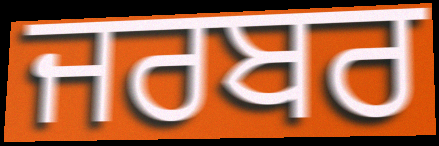
ਜਰਬਰ